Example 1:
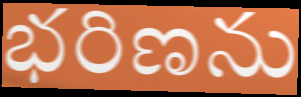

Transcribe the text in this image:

భరిణను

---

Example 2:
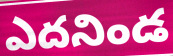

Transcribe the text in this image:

ఎదనిండ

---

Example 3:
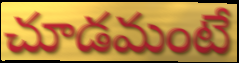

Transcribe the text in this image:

చూడమంటే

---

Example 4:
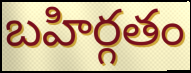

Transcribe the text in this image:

బహిర్గతం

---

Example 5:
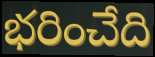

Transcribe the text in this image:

భరించేది